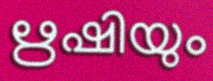
ഋഷിയും